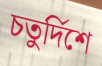
চতুৰ্দিশে